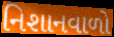
નિશાનવાળો